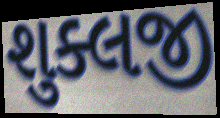
શુક્લજી